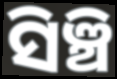
ସିଞ୍ଚି